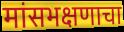
मांसभक्षणाचा